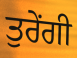
ਤੁਰੇਂਗੀ